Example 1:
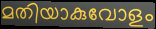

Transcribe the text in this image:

മതിയാകുവോളം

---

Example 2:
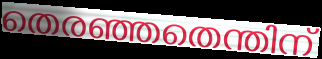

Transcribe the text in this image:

തെരഞ്ഞതെന്തിന്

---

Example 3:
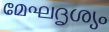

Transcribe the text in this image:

മേഘദൃശ്യം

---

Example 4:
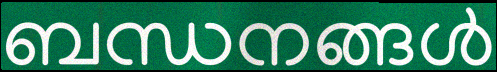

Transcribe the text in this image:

ബന്ധനങ്ങൾ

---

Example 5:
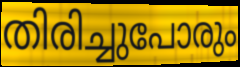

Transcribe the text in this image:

തിരിച്ചുപോരും